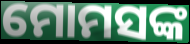
ମୋମସଙ୍କ